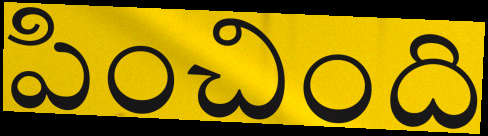
పించింది